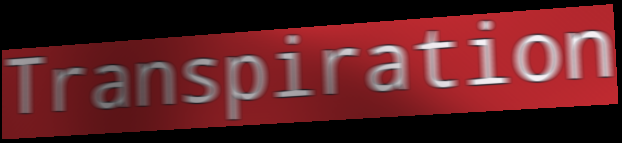
Transpiration